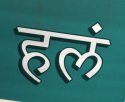
हलं